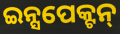
ଇନ୍ସପେକ୍ଟନ୍